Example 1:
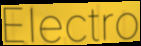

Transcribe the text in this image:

Electro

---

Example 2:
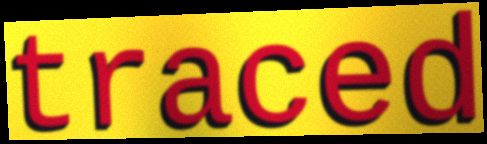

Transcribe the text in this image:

traced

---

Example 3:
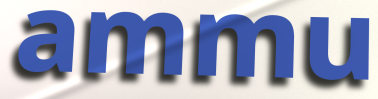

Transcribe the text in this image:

ammu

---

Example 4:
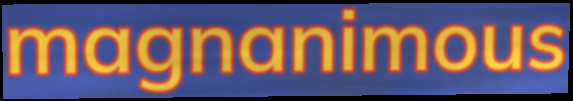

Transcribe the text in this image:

magnanimous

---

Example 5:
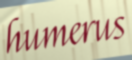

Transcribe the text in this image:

humerus